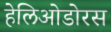
हेलिओडोरस